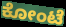
ಕೋಂಟೆ